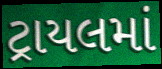
ટ્રાયલમાં